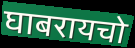
घाबरायचो